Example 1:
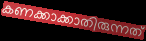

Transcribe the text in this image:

കണക്കാക്കാതിരുന്നത്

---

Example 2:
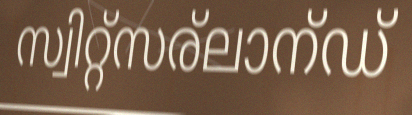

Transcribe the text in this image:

സ്വിറ്റ്സര്ലാന്ഡ്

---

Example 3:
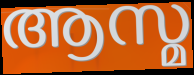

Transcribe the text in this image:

ആസ്മ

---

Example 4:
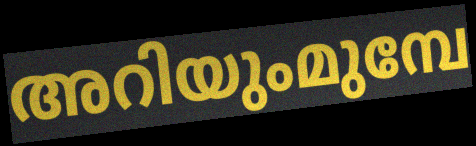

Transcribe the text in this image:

അറിയുംമുമ്പേ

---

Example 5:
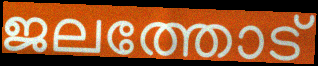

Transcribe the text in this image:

ജലത്തോട്